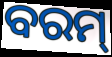
ବରମ୍